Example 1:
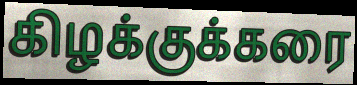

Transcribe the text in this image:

கிழக்குக்கரை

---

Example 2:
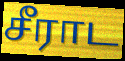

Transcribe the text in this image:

சீராட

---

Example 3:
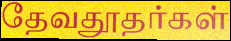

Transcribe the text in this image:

தேவதூதர்கள்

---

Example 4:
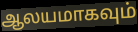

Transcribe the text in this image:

ஆலயமாகவும்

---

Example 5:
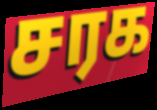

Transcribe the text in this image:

சரக